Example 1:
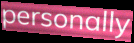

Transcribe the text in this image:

personally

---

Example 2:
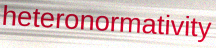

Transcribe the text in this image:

heteronormativity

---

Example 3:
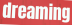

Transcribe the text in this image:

dreaming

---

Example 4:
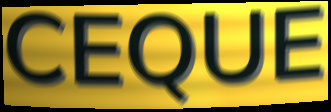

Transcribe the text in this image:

CEQUE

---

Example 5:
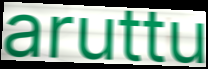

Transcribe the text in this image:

aruttu